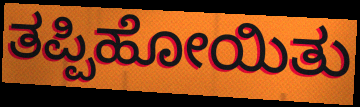
ತಪ್ಪಿಹೋಯಿತು